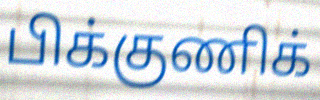
பிக்குணிக்